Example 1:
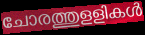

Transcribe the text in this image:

ചോരത്തുളളികൾ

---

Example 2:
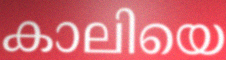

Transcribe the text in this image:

കാലിയെ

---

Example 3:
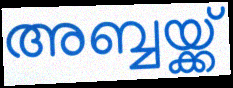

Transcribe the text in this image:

അബ്ബയ്ക്ക്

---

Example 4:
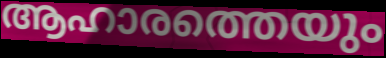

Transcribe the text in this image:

ആഹാരത്തെയും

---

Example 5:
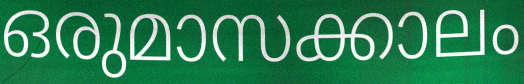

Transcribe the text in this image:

ഒരുമാസക്കാലം